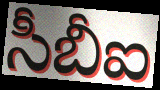
సీబీఐ